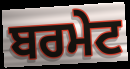
ਬਰਮੇਟ